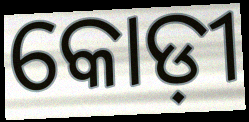
କୋଡ଼ୀ